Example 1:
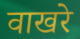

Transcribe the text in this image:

वाखरे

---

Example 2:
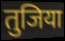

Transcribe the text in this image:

तुजिया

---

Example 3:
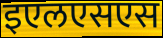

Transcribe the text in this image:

इएलएसएस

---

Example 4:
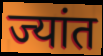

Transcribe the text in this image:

ज्यांत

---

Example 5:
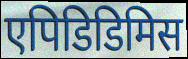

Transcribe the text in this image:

एपिडिडिमिस